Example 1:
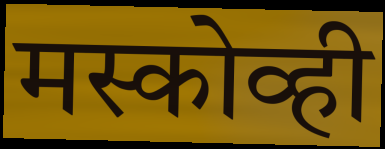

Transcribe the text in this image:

मस्कोव्ही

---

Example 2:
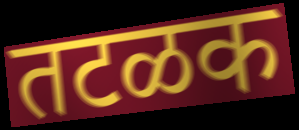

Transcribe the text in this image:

तटळक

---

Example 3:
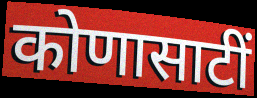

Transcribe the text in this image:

कोणासाटीं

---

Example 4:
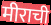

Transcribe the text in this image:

मीराची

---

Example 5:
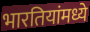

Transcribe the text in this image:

भारतियांमध्ये